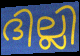
ദില്ലി